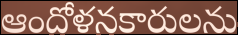
ఆందోళనకారులను